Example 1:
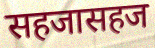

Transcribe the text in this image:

सहजासहज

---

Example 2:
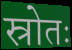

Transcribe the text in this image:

स्रोतः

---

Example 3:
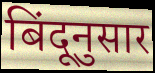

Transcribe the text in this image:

बिंदूनुसार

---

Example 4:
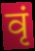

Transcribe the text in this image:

वृं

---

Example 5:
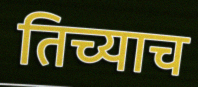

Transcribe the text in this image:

तिच्याच